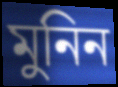
মুনিন